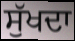
ਸੁੱਖਦਾ